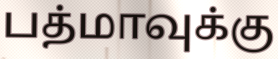
பத்மாவுக்கு